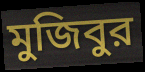
মুজিবুর